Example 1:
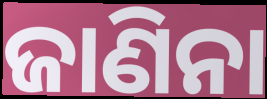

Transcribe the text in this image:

ଜାଣିନା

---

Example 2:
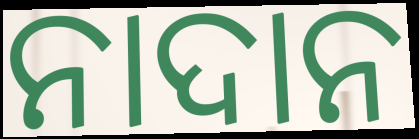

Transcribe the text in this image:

ନାଦାନ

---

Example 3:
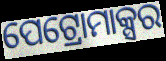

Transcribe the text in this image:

ପେଟ୍ରୋମାକ୍ସର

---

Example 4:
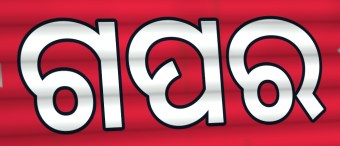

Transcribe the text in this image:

ଗପର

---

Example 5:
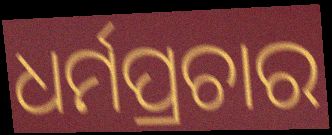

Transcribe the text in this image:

ଧର୍ମପ୍ରଚାର